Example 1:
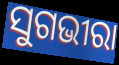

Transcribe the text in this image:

ସୁଗଭୀରା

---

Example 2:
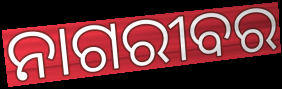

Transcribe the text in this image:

ନାଗରୀବର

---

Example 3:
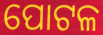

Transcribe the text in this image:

ପୋଟଳ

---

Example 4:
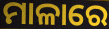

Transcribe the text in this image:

ମାଳାରେ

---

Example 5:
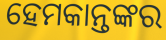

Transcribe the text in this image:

ହେମକାନ୍ତଙ୍କର